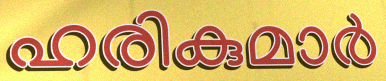
ഹരികുമാർ